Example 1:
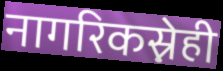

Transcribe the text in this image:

नागरिकस्नेही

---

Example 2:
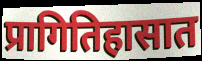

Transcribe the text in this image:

प्रागितिहासात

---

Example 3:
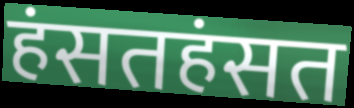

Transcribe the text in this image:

हंसतहंसत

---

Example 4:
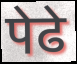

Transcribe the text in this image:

पेढे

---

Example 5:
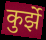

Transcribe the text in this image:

कुर्झे